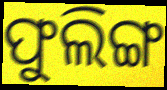
ଫୁଲିଙ୍ଗ